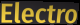
Electro